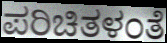
ಪರಿಚಿತಳಂತೆ